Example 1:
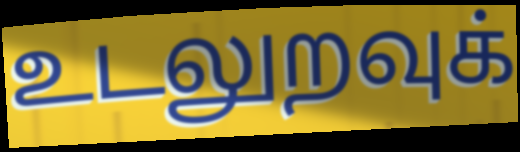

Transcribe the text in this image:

உடலுறவுக்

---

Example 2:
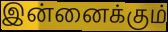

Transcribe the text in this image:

இன்னைக்கும்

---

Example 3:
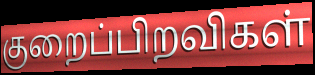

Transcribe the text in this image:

குறைப்பிறவிகள்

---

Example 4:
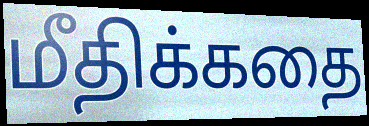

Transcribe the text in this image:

மீதிக்கதை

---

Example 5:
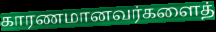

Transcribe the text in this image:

காரணமானவர்களைத்